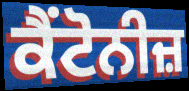
ਕੈਂਟੋਨੀਜ਼